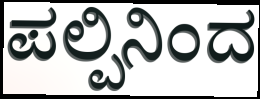
ಪಲ್ಪಿನಿಂದ